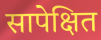
सापेक्षित